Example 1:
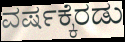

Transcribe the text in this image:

ವರ್ಷಕ್ಕೆರಡು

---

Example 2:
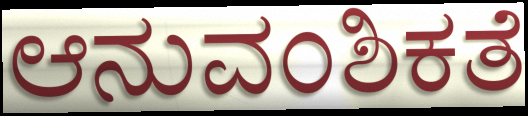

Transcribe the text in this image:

ಆನುವಂಶಿಕತೆ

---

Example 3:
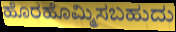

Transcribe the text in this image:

ಹೊರಹೊಮ್ಮಿಸಬಹುದು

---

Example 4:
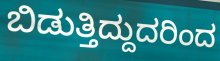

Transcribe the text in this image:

ಬಿಡುತ್ತಿದ್ದುದರಿಂದ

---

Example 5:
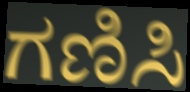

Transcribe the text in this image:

ಗಣಿಸಿ